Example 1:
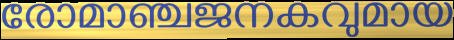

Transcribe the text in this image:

രോമാഞ്ചജനകവുമായ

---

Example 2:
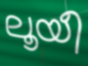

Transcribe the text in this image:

ലൂയീ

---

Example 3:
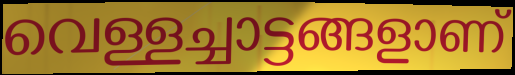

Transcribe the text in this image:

വെള്ളച്ചാട്ടങ്ങളാണ്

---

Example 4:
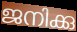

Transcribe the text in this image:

ജനിക്കു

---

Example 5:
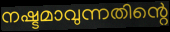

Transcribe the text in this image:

നഷ്ടമാവുന്നതിന്റെ